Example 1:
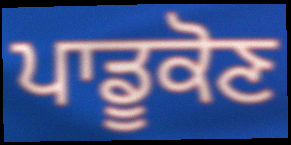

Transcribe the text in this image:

ਪਾਡੂਕੋਣ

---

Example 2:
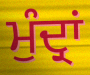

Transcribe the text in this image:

ਮੁੰਦ੍ਰਾਂ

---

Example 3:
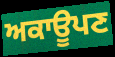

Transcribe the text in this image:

ਅਕਾਊਪਣ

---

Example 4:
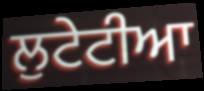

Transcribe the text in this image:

ਲੁਟੇਟੀਆ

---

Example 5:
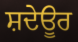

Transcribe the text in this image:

ਸ਼ਦੇਊਰ